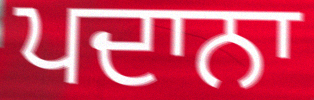
ਪਦਾਨਾ